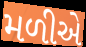
મળીએ